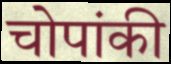
चोपांकी